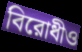
বিরোধীও